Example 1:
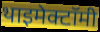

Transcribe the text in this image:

थाइमेक्टॉमी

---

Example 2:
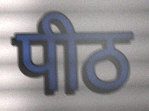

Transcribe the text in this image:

पीठ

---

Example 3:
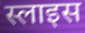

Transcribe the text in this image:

स्लाइस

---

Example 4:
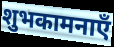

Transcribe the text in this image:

शुभकामनाएँ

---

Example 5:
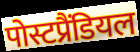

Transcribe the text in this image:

पोस्टप्रैंडियल